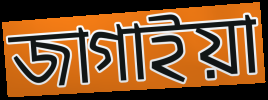
জাগাইয়া